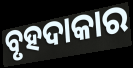
ବୃହଦାକାର